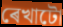
ৰেখাটো